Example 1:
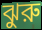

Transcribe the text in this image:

ঝুরু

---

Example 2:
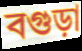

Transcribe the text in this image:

বগুড়া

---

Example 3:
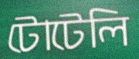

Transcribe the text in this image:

টোটেলি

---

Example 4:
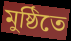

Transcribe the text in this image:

মুষ্ঠিতে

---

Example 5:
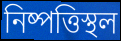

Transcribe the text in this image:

নিষ্পত্তিস্থল